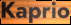
Kaprio